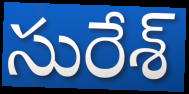
సురేశ్